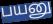
பயனு